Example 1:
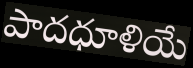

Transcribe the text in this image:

పాదధూళియే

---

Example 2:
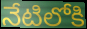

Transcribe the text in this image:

నేటిలోకి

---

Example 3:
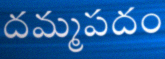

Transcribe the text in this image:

దమ్మపదం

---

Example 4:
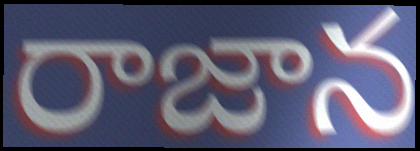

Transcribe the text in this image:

రాజాన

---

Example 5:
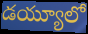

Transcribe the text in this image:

డయ్యూలో